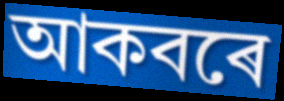
আকবৰে